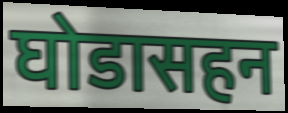
घोडासहन